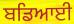
ਬਡਿਆਈ